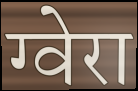
ग्वेरा